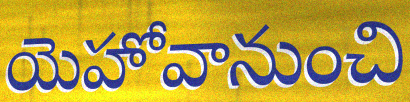
యెహోవానుంచి